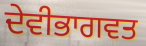
ਦੇਵੀਭਾਗਵਤ